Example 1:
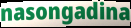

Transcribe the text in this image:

nasongadina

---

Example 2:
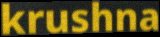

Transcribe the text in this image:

krushna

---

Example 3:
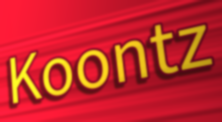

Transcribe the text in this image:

Koontz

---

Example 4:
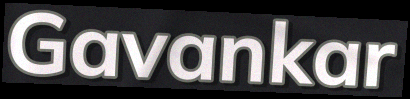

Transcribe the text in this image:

Gavankar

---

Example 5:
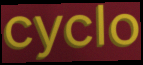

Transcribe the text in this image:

cyclo